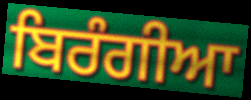
ਬਿਰੰਗੀਆ